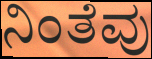
ನಿಂತೆವು